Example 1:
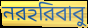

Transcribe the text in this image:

নরহরিবাবু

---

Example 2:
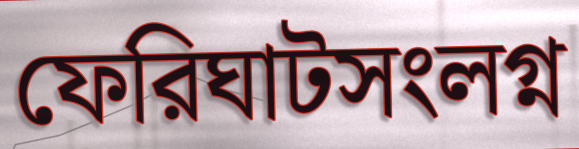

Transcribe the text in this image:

ফেরিঘাটসংলগ্ন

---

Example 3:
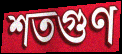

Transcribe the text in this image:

শতগুণ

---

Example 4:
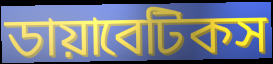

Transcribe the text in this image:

ডায়াবেটিকস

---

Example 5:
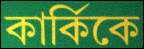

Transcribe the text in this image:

কার্কিকে